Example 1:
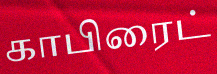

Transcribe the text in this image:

காபிரைட்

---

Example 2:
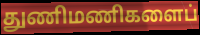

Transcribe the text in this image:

துணிமணிகளைப்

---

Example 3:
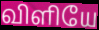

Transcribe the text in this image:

விளியே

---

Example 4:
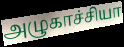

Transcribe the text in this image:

அழுகாச்சியா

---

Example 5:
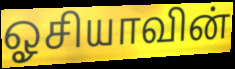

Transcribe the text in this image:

ஓசியாவின்